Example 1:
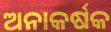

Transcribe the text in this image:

ଅନାକର୍ଷକ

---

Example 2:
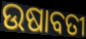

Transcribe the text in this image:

ଉଷାବତୀ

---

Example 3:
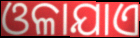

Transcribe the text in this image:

ଓଳାଯାଏ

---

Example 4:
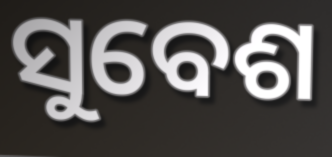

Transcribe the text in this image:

ସୁବେଶ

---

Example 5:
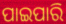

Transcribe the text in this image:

ପାଇପାରି